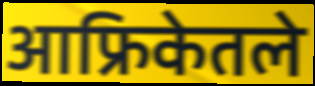
आफ्रिकेतले